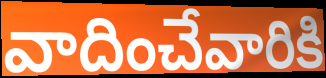
వాదించేవారికి